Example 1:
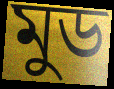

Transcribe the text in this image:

মুড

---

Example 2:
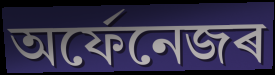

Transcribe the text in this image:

অৰ্ফেনেজৰ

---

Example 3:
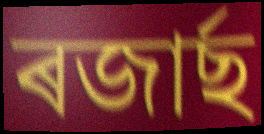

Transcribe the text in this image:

ৰজাৰ্ছ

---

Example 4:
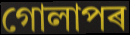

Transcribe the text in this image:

গোলাপৰ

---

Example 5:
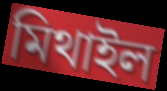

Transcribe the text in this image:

মিথাইল